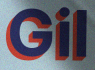
Gil